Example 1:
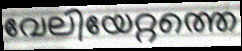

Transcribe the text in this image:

വേലിയേറ്റത്തെ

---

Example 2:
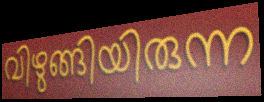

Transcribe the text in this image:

വിഴുങ്ങിയിരുന്ന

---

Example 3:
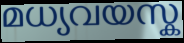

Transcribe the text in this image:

മധ്യവയസ്ക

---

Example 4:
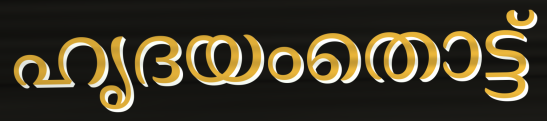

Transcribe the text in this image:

ഹൃദയംതൊട്ട്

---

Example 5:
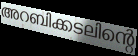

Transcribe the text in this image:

അറബിക്കടലിന്റെ